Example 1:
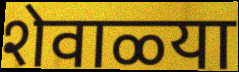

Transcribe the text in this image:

शेवाळ्या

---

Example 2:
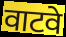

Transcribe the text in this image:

वाटवे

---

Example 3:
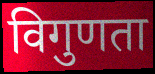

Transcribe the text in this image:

विगुणता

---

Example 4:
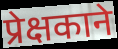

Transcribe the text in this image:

प्रेक्षकाने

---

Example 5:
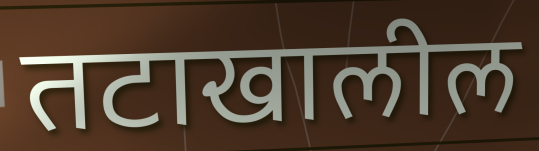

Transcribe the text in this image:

तटाखालील